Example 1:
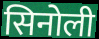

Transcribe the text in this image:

सिनोली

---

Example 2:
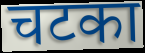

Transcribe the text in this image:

चटका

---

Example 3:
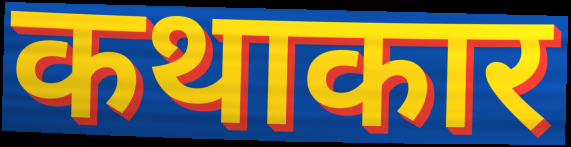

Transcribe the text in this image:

कथाकार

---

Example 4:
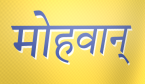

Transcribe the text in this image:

मोहवान्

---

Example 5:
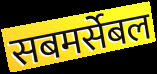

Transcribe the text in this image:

सबमर्सेबल